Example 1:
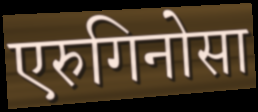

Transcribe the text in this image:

एरुगिनोसा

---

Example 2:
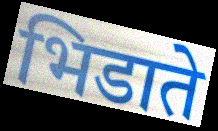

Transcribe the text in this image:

भिडाते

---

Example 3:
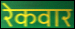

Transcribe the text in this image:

रेकवार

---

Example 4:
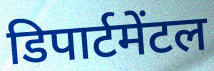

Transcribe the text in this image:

डिपार्टमेंटल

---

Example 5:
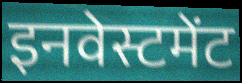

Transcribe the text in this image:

इनवेस्टमेंट